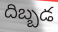
దిబ్బడ